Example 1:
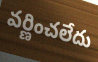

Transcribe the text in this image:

వర్ణించలేదు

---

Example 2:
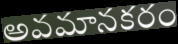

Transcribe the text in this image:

అవమానకరం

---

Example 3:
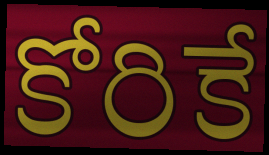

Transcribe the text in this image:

కోరికే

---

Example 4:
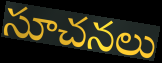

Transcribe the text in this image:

సూచనలు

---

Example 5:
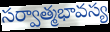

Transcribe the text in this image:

సర్వాత్మభావస్య